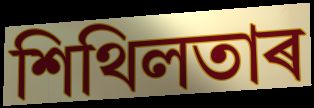
শিথিলতাৰ